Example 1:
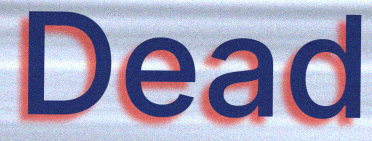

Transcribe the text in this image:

Dead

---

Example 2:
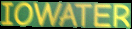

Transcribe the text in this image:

IOWATER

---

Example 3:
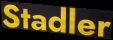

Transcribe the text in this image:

Stadler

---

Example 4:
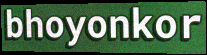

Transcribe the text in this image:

bhoyonkor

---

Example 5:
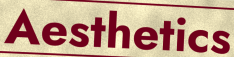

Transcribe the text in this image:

Aesthetics